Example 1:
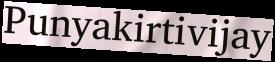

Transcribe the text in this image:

Punyakirtivijay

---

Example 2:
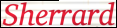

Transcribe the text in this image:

Sherrard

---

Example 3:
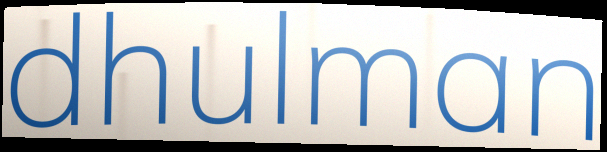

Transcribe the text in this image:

dhulman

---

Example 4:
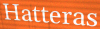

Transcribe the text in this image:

Hatteras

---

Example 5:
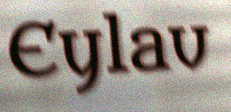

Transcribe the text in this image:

Eylau